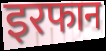
इरफान